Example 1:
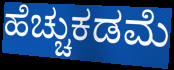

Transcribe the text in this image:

ಹೆಚ್ಚುಕಡಮೆ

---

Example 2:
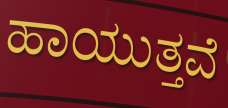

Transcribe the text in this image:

ಹಾಯುತ್ತವೆ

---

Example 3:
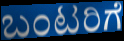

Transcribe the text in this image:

ಬಂಟರಿಗೆ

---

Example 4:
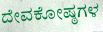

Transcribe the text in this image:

ದೇವಕೋಷ್ಠಗಳ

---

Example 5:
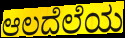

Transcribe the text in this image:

ಆಲದೆಲೆಯ